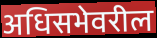
अधिसभेवरील